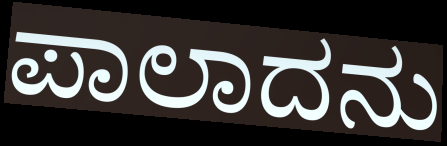
ಪಾಲಾದನು